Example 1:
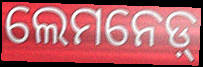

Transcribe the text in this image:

ଲେମନେଡ଼୍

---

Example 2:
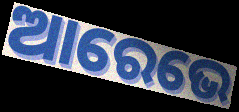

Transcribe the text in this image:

ଆରେଭେ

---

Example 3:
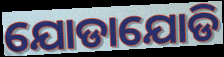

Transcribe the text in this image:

ଯୋଡାଯୋଡି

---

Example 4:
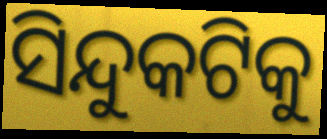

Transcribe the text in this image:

ସିନ୍ଦୁକଟିକୁ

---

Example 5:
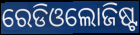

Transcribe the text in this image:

ରେଡିଓଲୋଜିଷ୍ଟ